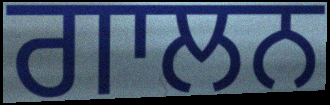
ਗਾਲਨ